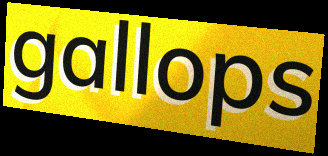
gallops